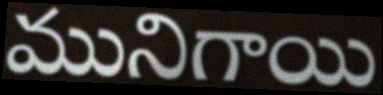
మునిగాయి